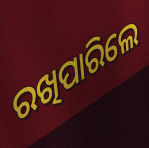
ରଖିପାରିଲେ